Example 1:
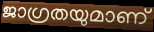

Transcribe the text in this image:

ജാഗ്രതയുമാണ്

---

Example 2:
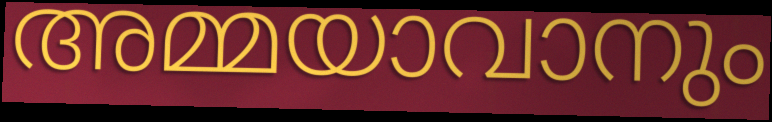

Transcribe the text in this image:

അമ്മയാവാനും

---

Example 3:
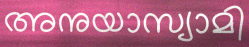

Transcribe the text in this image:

അനുയാസ്യാമി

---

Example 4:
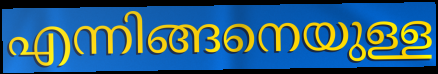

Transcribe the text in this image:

എന്നിങ്ങനെയുള്ള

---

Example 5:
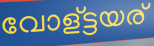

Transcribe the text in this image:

വോള്ട്ടയര്